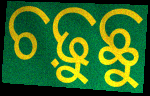
ଚଢ଼ୁଛୁ